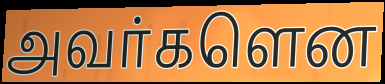
அவர்களென